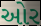
ઓર